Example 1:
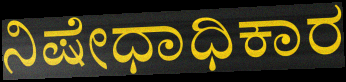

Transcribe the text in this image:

ನಿಷೇಧಾಧಿಕಾರ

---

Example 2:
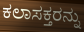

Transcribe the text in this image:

ಕಲಾಸಕ್ತರನ್ನು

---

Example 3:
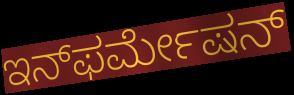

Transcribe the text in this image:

ಇನ್‌ಫರ್ಮೇಷನ್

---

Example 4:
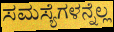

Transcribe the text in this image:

ಸಮಸ್ಯೆಗಳನ್ನೆಲ್ಲ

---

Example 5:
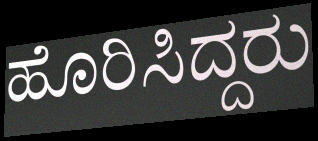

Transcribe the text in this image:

ಹೊರಿಸಿದ್ದರು